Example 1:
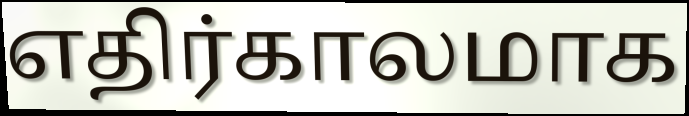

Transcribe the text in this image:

எதிர்காலமாக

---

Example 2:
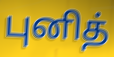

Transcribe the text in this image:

புனித்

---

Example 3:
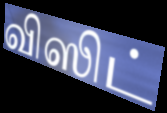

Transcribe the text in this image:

விஸிட்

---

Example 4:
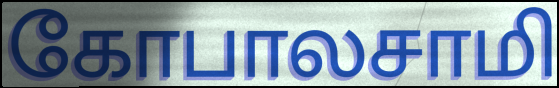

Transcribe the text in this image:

கோபாலசாமி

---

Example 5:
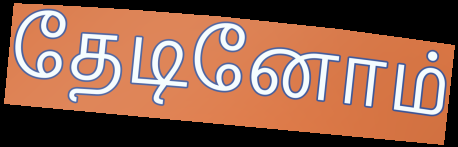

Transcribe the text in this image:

தேடினோம்